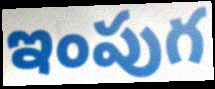
ఇంపుగ